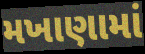
મખાણામાં